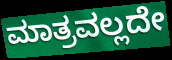
ಮಾತ್ರವಲ್ಲದೇ